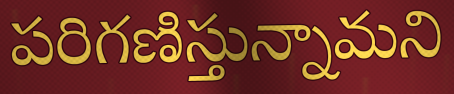
పరిగణిస్తున్నామని